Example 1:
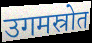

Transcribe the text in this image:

उगमस्रोत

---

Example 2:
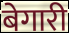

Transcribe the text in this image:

बेगारी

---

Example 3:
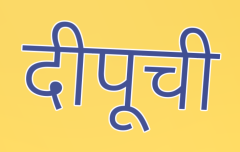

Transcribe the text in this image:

दीपूची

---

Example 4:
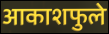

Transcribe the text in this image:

आकाशफुले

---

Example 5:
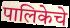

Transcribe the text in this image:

पालिकेचे